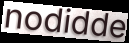
nodidde